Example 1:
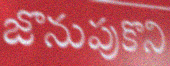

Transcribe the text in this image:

జొనుపుకొని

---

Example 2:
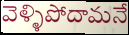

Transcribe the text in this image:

వెళ్ళిపోదామనే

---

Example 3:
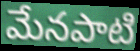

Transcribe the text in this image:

మేనపాటి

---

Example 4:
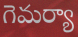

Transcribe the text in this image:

గెమర్యా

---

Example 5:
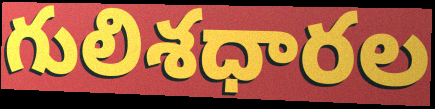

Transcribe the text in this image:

గులిశధారల